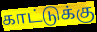
காட்டுக்கு